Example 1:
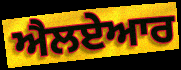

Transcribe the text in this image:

ਐਲਏਆਰ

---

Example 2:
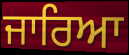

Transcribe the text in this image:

ਜਾਰਿਆ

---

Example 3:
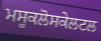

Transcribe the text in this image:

ਮਸੂਕਲੋਸਕੇਲਟਲ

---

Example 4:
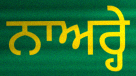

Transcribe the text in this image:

ਨਾਅਰ੍ਹੇ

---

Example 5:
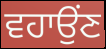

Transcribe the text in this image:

ਵਹਾਉਂਣ